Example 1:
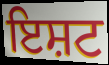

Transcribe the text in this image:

ਇਸ਼ਟ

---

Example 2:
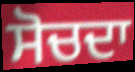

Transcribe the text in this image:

ਸੋਚਦਾ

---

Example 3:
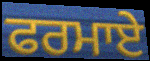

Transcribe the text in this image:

ਫਰਮਾਏ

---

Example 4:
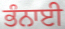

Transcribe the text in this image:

ਭੰਨਾਈ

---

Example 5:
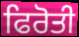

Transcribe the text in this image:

ਫਿਰੋਤੀ